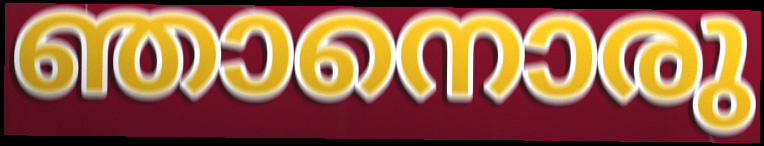
ഞാനൊരു